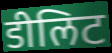
डीलिट